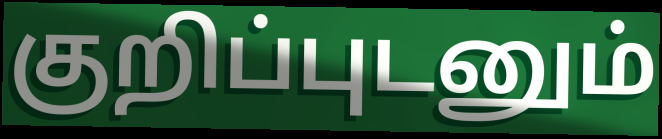
குறிப்புடனும்